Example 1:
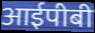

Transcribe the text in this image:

आईपीबी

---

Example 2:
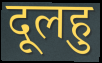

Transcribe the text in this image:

दूलहु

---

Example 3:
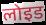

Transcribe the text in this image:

लोइड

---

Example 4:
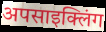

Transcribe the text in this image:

अपसाइक्लिंग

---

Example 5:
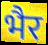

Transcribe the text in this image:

भैर